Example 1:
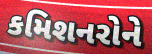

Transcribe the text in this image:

કમિશનરોને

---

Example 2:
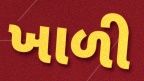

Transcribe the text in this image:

ખાળી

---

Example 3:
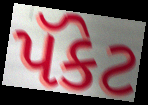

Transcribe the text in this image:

પૅકેટ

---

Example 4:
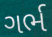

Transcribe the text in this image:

ગર્ભ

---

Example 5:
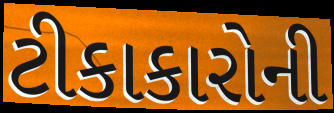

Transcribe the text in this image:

ટીકાકારોની